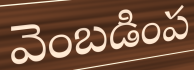
వెంబడింప